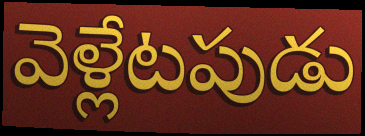
వెళ్లేటపుడు